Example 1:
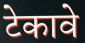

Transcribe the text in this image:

टेकावे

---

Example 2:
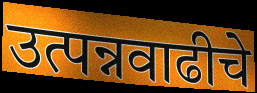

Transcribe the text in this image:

उत्पन्नवाढीचे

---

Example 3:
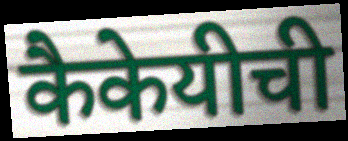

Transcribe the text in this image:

कैकेयीची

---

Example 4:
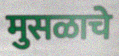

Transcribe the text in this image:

मुसळाचे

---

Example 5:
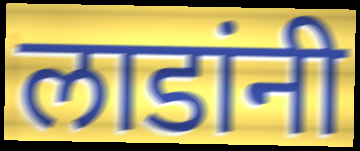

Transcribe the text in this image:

लाडांनी